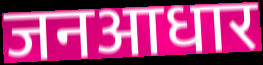
जनआधार